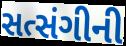
સત્સંગીની